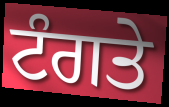
ਟੰਗਤੇ